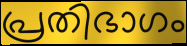
പ്രതിഭാഗം